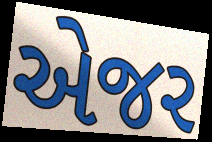
એજર